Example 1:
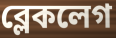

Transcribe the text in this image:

ব্লেকলেগ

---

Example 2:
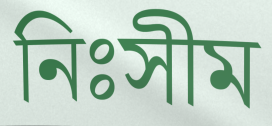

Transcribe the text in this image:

নিঃসীম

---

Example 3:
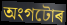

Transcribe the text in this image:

অংগটোৰ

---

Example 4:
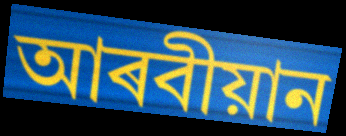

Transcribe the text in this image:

আৰবীয়ান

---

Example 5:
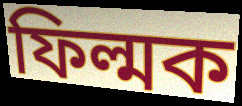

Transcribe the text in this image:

ফিল্মক